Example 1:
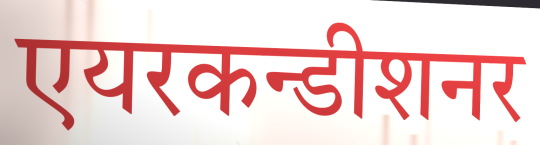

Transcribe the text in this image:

एयरकन्डीशनर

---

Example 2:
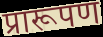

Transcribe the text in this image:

प्रारूपण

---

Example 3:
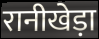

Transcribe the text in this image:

रानीखेड़ा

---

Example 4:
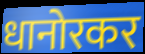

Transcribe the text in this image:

धानोरकर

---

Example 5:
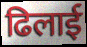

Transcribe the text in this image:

ढिलाई